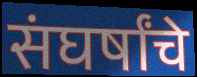
संघर्षांचे